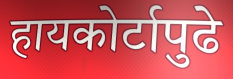
हायकोर्टापुढे